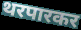
थरपारकर